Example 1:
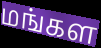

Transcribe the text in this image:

மங்கள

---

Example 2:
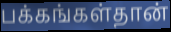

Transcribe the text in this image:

பக்கங்கள்தான்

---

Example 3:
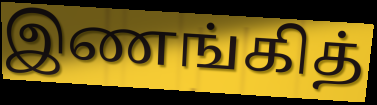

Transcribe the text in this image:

இணங்கித்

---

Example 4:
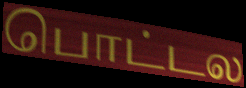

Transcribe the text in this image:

பொட்டல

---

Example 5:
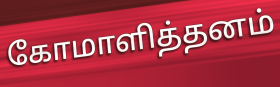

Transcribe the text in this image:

கோமாளித்தனம்